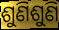
ଶୁଣିଶୁଣି